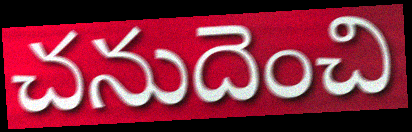
చనుదెంచి